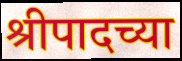
श्रीपादच्या